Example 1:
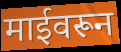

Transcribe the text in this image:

माईवरून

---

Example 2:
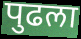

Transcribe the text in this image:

पुढला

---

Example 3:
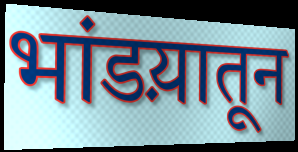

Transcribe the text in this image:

भांडय़ातून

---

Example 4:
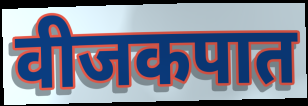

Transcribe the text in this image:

वीजकपात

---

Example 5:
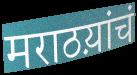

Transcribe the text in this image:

मराठय़ांचं